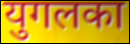
युगलका